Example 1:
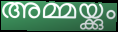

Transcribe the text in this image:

അമ്മയ്ക്കും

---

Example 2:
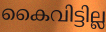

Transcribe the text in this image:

കൈവിട്ടില്ല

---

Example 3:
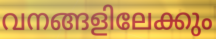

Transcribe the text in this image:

വനങ്ങളിലേക്കും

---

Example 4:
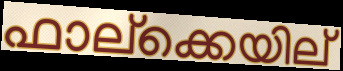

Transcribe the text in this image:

ഫാല്ക്കെയില്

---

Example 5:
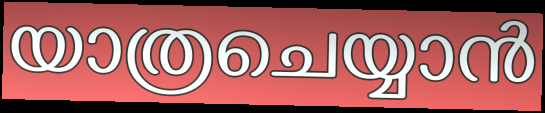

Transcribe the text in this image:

യാത്രചെയ്യാൻ